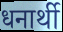
धनार्थी